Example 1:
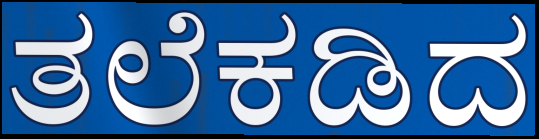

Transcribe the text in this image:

ತಲೆಕಡಿದ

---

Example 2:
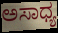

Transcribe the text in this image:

ಅಸಾಧ್ಯ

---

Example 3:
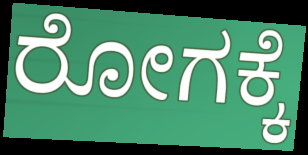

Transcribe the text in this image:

ರೋಗಕ್ಕೆ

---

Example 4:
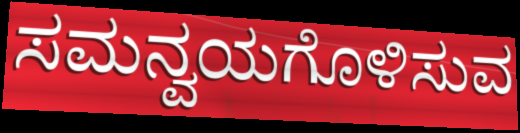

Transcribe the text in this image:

ಸಮನ್ವಯಗೊಳಿಸುವ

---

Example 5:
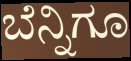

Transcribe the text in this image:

ಬೆನ್ನಿಗೂ